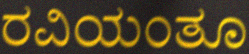
ರವಿಯಂತೂ